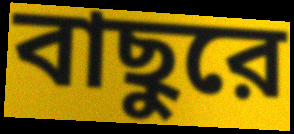
বাছুরে